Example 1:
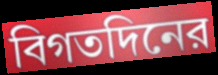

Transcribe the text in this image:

বিগতদিনের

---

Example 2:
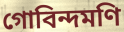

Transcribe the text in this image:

গোবিন্দমণি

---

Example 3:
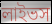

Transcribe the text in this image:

লাইভস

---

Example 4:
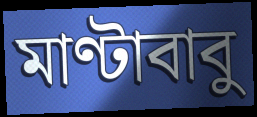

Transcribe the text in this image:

মাণ্টাবাবু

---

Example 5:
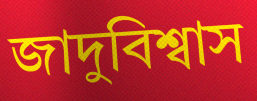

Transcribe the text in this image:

জাদুবিশ্বাস